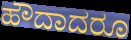
ಹೌದಾದರೂ